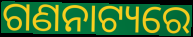
ଗଣନାଟ୍ୟରେ